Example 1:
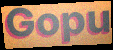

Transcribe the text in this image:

Gopu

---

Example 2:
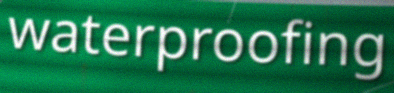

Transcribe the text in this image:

waterproofing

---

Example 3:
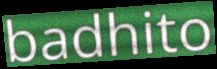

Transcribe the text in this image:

badhito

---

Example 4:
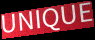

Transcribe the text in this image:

UNIQUE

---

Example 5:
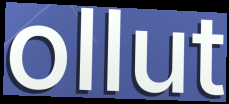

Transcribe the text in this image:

ollut